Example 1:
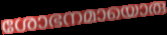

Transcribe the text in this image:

ശോഭനമായൊരു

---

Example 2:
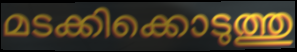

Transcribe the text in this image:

മടക്കിക്കൊടുത്തു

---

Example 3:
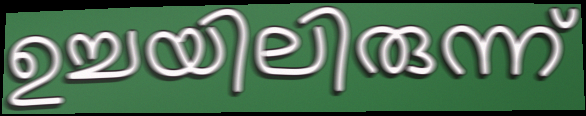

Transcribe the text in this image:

ഉച്ചയിലിരുന്ന്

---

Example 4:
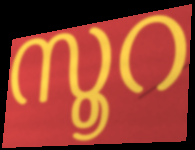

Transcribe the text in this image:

സൂറ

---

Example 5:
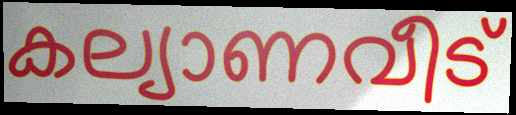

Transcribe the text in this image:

കല്യാണവീട്